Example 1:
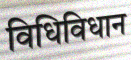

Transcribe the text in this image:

विधिविधान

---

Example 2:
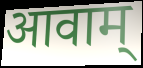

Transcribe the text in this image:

आवाम्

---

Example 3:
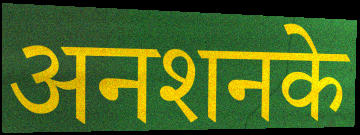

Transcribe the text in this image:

अनशनके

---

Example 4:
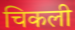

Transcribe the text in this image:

चिकली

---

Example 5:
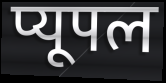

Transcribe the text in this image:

प्यूपल